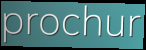
prochur